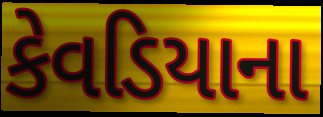
કેવડિયાના